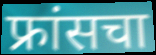
फ्रांसचा